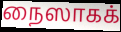
நைஸாகக்